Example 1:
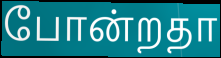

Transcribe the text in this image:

போன்றதா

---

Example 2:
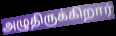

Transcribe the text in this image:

அழுதிருக்கிறார்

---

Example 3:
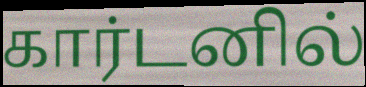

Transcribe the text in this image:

கார்டனில்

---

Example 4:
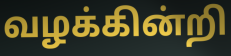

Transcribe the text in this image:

வழக்கின்றி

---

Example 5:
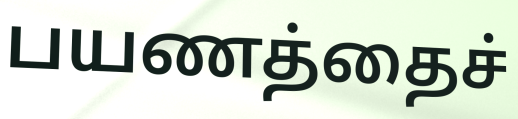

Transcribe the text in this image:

பயணத்தைச்